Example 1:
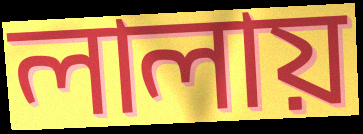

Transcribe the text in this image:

লালায়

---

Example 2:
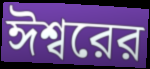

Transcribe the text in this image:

ঈশ্বরের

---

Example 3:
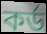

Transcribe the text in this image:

কর্ড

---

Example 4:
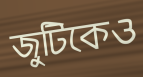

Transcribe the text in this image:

জুটিকেও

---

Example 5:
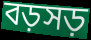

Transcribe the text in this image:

বড়সড়